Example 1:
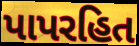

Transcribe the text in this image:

પાપરહિત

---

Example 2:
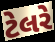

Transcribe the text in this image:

ટેલરે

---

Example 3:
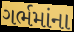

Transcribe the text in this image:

ગર્ભમાંના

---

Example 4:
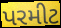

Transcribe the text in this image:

પરમીટ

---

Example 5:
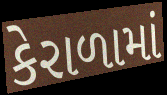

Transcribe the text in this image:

કેરાળામાં